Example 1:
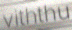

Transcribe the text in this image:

viththu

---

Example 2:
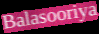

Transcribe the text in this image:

Balasooriya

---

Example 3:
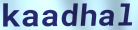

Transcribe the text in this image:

kaadhal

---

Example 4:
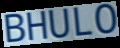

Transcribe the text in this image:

BHULO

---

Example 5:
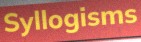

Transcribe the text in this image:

Syllogisms